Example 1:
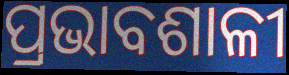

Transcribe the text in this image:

ପ୍ରଭାବଶାଳୀ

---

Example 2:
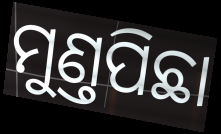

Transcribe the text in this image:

ମୁଣ୍ତପିଛା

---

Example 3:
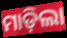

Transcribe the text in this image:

ମାଡ଼ିଲା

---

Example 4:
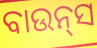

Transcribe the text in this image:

ବାଉନ୍‌ସ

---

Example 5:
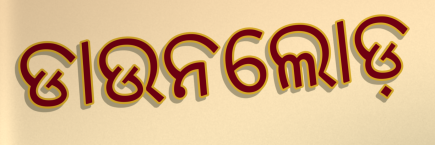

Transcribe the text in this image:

ଡାଉନଲୋଡ଼